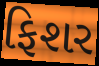
ફિશર